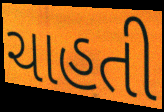
ચાહતી